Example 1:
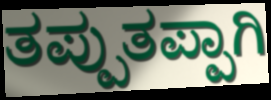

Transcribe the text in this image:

ತಪ್ಪುತಪ್ಪಾಗಿ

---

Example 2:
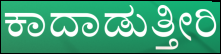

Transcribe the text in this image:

ಕಾದಾಡುತ್ತೀರಿ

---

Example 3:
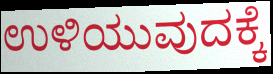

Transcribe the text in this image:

ಉಳಿಯುವುದಕ್ಕೆ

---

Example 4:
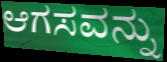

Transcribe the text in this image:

ಆಗಸವನ್ನು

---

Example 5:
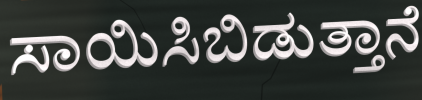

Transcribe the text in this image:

ಸಾಯಿಸಿಬಿಡುತ್ತಾನೆ